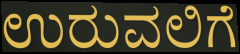
ಉರುವಲಿಗೆ